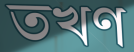
তখণ